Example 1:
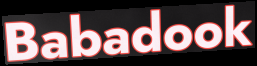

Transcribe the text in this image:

Babadook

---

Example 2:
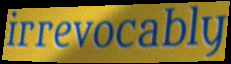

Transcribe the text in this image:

irrevocably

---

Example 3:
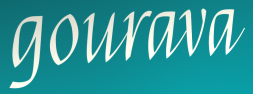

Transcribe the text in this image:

gourava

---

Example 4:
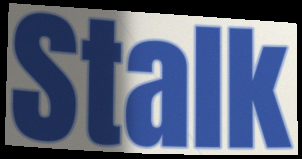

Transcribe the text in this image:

Stalk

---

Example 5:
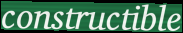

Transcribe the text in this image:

constructible